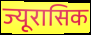
ज्यूरासिक